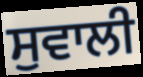
ਸੁਵਾਲੀ